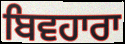
ਬਿਵਹਾਰਾ